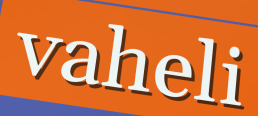
vaheli